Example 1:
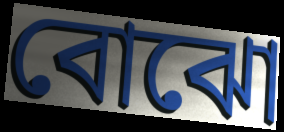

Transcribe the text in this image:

বোঝো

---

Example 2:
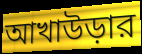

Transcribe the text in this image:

আখাউড়ার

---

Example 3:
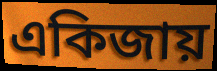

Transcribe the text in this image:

একিজায়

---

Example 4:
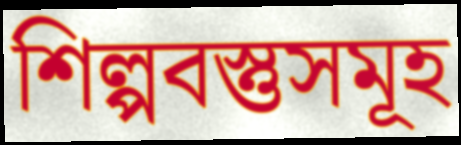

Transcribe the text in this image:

শিল্পবস্তুসমূহ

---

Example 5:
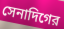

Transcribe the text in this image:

সেনাদিগের